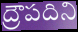
ద్రౌపదిని